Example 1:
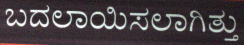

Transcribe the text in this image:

ಬದಲಾಯಿಸಲಾಗಿತ್ತು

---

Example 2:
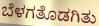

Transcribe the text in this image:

ಬೆಳಗತೊಡಗಿತು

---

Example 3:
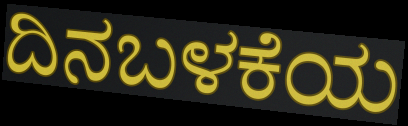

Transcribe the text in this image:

ದಿನಬಳಕೆಯ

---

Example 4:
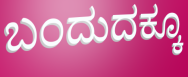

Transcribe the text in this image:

ಬಂದುದಕ್ಕೂ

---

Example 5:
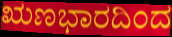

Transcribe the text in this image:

ಋಣಭಾರದಿಂದ